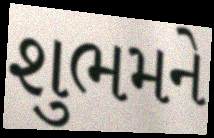
શુભમને